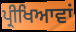
ਪ੍ਰੀਖਿਆਵਾਂ